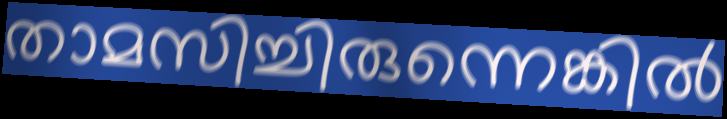
താമസിച്ചിരുന്നെങ്കിൽ